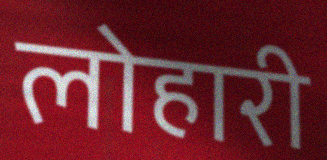
लोहारी